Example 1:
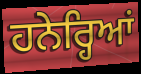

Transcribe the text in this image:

ਹਨੇਰ੍ਹਿਆਂ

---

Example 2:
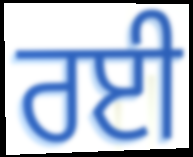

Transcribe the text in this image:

ਰਈ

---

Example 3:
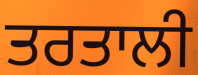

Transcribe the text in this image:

ਤਰਤਾਲੀ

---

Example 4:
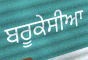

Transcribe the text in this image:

ਬਰੂਕੇਸੀਆ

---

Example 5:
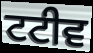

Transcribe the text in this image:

ਟਟੀਵ